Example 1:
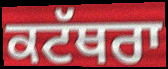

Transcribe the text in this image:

ਕਟੱਥਰਾ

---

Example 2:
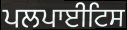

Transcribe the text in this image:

ਪਲਪਾਈਟਿਸ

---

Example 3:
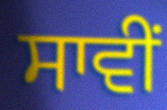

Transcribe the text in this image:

ਸਾਵੀਂ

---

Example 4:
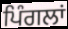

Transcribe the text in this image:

ਪਿੰਗਲਾਂ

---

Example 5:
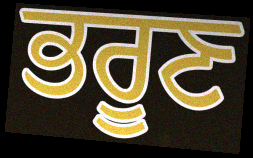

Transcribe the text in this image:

ਭਰੂਣ